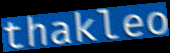
thakleo